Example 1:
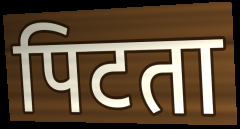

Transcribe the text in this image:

पिटता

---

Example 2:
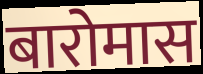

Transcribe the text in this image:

बारोमास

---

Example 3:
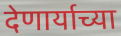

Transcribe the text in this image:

देणार्याच्या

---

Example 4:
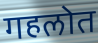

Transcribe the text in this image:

गहलोत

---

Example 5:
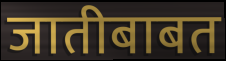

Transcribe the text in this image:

जातीबाबत